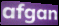
afgan